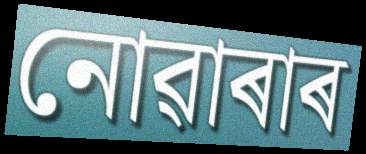
নোৱাৰাৰ